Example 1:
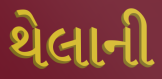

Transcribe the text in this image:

થેલાની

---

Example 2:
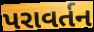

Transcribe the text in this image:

પરાવર્તન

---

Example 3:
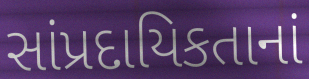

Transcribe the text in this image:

સાંપ્રદાયિકતાનાં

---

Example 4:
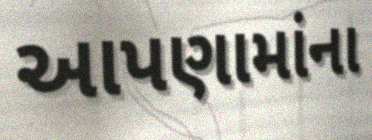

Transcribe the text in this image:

આપણામાંના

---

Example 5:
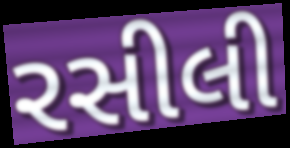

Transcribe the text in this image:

રસીલી